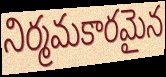
నిర్మమకారమైన